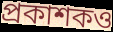
প্রকাশকও